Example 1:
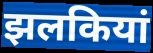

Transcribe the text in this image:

झलकियां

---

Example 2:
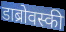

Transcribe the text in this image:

डाब्रोवस्की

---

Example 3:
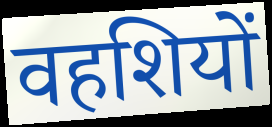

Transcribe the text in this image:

वहशियों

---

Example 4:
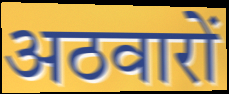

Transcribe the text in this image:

अठवारों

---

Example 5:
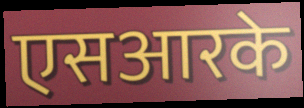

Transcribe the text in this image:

एसआरके